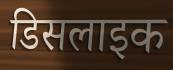
डिसलाइक